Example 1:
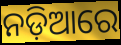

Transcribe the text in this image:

ନଡ଼ିଆରେ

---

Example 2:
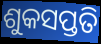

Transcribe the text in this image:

ଶୁକସପ୍ତତି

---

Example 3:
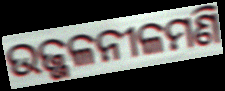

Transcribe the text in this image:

ଉଜ୍ଜଳନୀଳମଣି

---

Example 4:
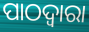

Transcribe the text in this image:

ପାଠଦ୍ଵାରା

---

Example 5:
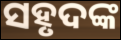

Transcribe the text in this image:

ସହୃଦଙ୍କ